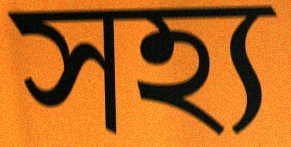
সহ্য